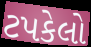
ટપકેલો